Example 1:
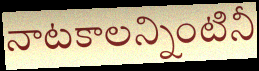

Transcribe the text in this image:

నాటకాలన్నింటినీ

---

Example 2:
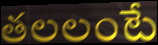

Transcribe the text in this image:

తలలంటే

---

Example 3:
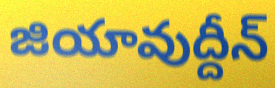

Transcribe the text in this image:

జియావుద్దీన్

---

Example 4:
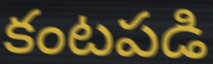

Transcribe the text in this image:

కంటపడి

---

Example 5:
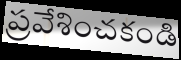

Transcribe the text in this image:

ప్రవేశించకండి